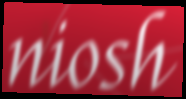
niosh